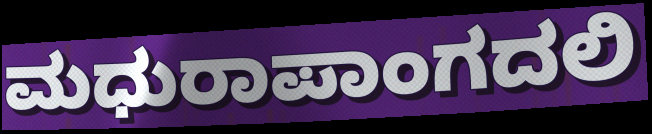
ಮಧುರಾಪಾಂಗದಲಿ